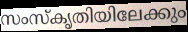
സംസ്കൃതിയിലേക്കും